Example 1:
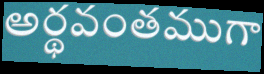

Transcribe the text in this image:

అర్థవంతముగా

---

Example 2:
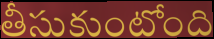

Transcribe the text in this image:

తీసుకుంటోంది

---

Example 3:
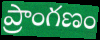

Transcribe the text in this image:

ప్రాంగణం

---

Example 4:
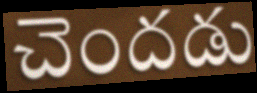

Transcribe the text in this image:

చెందడు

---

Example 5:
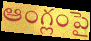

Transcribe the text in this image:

ఆంగ్లంపై